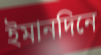
ইমানদিনে